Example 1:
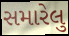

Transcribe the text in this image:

સમારેલુ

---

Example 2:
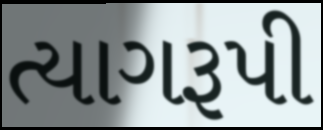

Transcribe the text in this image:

ત્યાગરૂપી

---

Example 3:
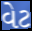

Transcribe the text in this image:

વેટ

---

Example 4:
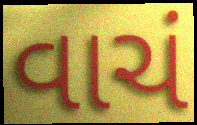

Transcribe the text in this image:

વાચં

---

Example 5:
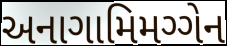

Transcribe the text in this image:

અનાગામિમગ્ગેન